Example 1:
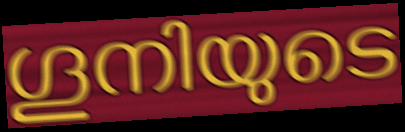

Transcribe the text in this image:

ഗൂനിയുടെ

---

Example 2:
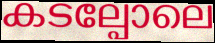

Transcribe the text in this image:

കടല്പോലെ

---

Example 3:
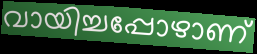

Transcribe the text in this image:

വായിച്ചപ്പോഴാണ്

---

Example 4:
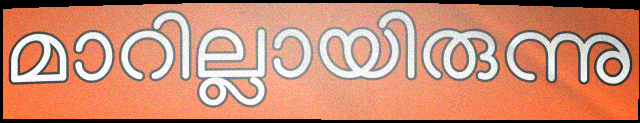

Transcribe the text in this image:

മാറില്ലായിരുന്നു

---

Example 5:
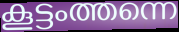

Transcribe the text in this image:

കൂട്ടംത്തന്നെ